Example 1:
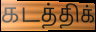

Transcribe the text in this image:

கடத்திக்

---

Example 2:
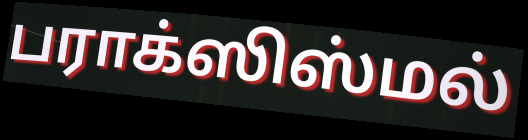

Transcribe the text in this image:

பராக்ஸிஸ்மல்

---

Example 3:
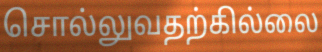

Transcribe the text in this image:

சொல்லுவதற்கில்லை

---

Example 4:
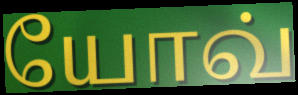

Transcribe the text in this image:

யோவ்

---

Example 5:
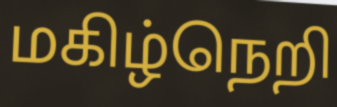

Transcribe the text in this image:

மகிழ்நெறி